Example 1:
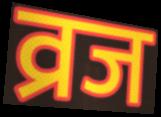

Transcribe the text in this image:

व्रज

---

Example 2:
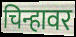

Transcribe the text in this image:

चिन्हावर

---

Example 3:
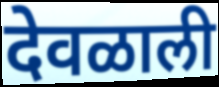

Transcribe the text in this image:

देवळाली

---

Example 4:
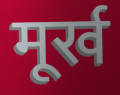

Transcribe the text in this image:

मूर्ख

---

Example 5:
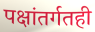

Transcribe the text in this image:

पक्षांतर्गतही